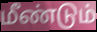
மீண்டும்